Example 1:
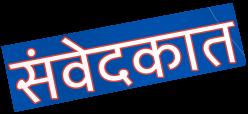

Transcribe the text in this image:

संवेदकात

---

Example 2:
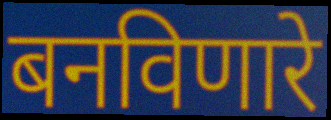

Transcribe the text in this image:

बनविणारे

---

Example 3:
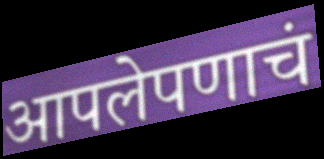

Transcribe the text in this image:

आपलेपणाचं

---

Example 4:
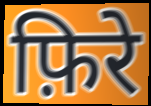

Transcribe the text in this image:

फ़िरे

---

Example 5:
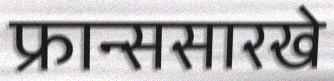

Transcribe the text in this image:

फ्रान्ससारखे